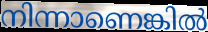
നിന്നാണെങ്കിൽ